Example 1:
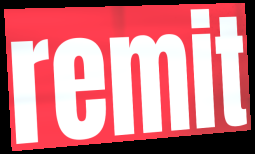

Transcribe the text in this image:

remit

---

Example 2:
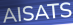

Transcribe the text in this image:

AISATS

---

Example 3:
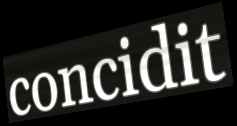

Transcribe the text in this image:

concidit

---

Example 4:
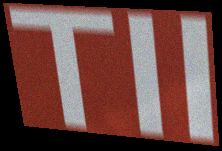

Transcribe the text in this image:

TII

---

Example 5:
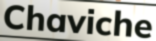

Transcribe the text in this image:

Chaviche